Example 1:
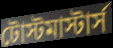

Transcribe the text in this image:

টোস্টমাস্টার্স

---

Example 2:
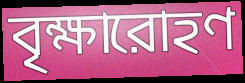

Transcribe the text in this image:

বৃক্ষারোহণ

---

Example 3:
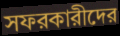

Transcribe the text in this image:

সফরকারীদের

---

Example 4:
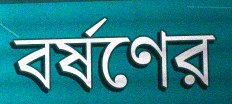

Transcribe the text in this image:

বর্ষণের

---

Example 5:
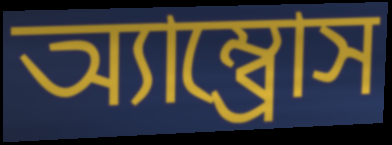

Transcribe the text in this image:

অ্যাম্ব্রোস